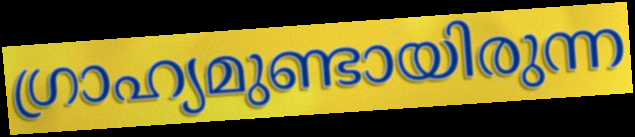
ഗ്രാഹ്യമുണ്ടായിരുന്ന